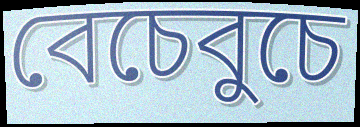
বেচেবুচে